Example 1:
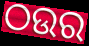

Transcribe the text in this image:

ଠଉର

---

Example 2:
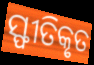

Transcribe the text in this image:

ସ୍ଫୀତିକୃତ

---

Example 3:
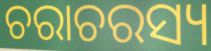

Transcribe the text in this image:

ଚରାଚରସ୍ୟ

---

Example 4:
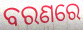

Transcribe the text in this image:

ବରଣରେ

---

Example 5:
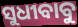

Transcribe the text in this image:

ସୁଧୀବାବୁ